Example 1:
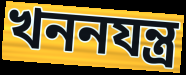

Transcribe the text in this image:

খননযন্ত্র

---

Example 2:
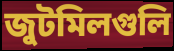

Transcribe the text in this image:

জুটমিলগুলি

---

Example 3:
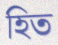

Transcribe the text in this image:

হিত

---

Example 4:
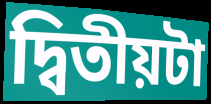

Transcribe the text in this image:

দ্বিতীয়টা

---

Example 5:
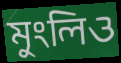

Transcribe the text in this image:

মুংলিও